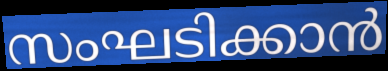
സംഘടിക്കാൻ